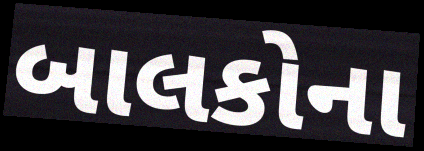
બાલકોના